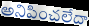
అనిపించలేదా